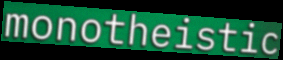
monotheistic